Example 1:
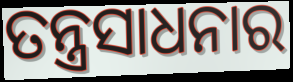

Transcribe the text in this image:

ତନ୍ତ୍ରସାଧନାର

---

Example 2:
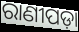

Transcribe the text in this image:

ରାଣୀପଡ଼ା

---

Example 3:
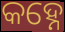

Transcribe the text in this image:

କହ୍ନେ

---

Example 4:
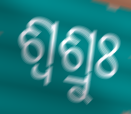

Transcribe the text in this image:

ଶ୍ଵଶ୍ରୁଃ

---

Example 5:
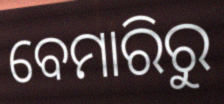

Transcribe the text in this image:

ବେମାରିରୁ